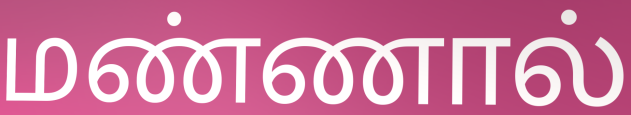
மண்ணால்